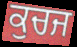
ਕੁਚਜ